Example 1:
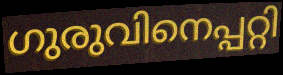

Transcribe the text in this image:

ഗുരുവിനെപ്പറ്റി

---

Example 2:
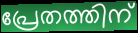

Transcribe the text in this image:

പ്രേതത്തിന്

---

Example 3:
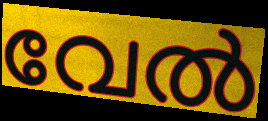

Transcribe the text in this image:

വേൽ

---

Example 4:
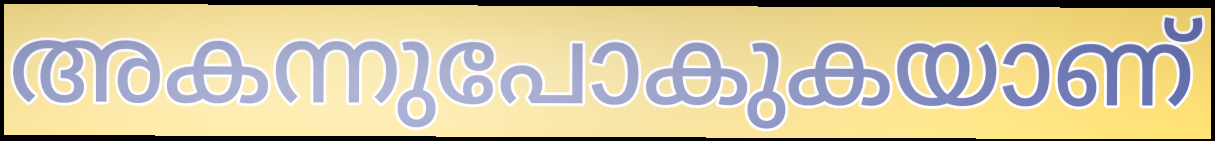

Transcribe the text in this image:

അകന്നുപോകുകയാണ്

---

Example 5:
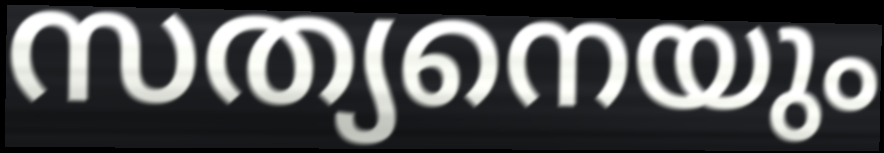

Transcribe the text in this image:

സത്യനെയും